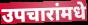
उपचारांमधे